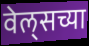
वेल्सच्या